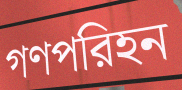
গণপরিহন